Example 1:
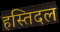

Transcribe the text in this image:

हस्तिदल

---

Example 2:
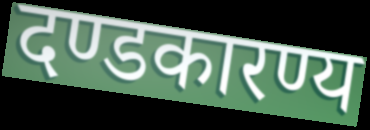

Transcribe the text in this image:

दण्डकारण्य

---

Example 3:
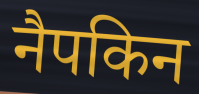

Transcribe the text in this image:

नैपकिन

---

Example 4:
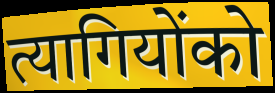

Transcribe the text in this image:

त्यागियोंको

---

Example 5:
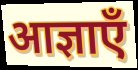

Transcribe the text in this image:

आज्ञाएँ